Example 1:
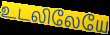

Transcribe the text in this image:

உடலிலேயே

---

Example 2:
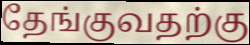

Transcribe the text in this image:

தேங்குவதற்கு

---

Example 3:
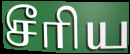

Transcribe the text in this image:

சீரிய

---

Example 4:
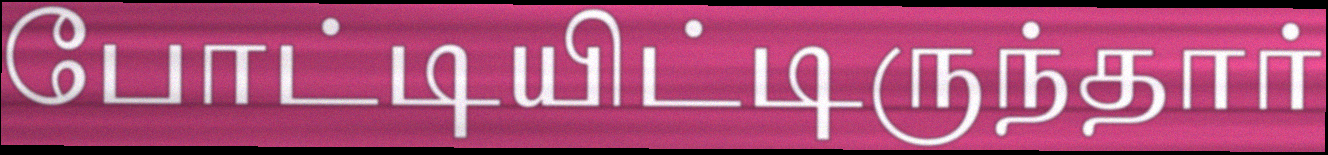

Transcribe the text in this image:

போட்டியிட்டிருந்தார்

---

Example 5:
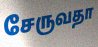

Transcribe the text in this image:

சேருவதா